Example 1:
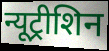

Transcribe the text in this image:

न्यूट्रीशिन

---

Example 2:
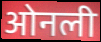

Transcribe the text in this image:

ओनली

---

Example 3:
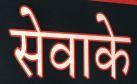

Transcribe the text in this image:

सेवाके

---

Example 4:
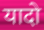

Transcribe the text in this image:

यादो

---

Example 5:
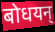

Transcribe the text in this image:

बोधयन्